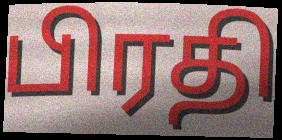
பிரதி